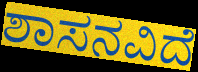
ಶಾಸನವಿದೆ